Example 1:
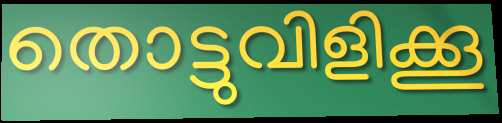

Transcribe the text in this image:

തൊട്ടുവിളിക്കൂ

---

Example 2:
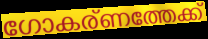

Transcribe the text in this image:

ഗോകര്ണത്തേക്ക്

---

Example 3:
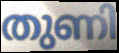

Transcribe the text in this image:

തുണി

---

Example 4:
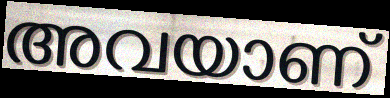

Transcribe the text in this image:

അവയാണ്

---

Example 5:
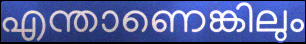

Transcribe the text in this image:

എന്താണെങ്കിലും